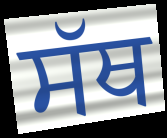
ਸੱਥ